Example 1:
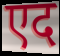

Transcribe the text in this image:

एद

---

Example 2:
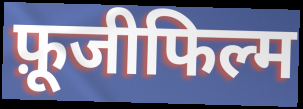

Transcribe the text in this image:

फ़ूजीफिल्म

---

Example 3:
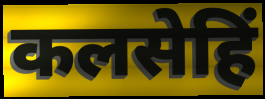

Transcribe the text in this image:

कलसेहिं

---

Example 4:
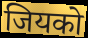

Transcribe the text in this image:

जियको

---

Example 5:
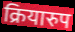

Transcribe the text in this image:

क्रियारुप